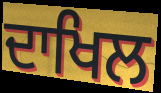
ਦਾਖਿਲ